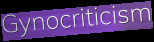
Gynocriticism